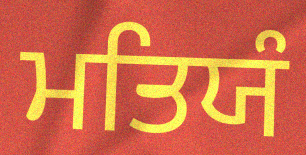
ਮਤਿਯੰ